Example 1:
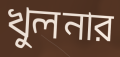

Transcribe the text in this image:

খুলনার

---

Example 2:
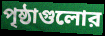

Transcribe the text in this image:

পৃষ্ঠাগুলোর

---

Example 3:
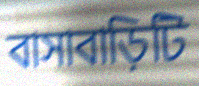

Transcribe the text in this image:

বাসাবাড়িটি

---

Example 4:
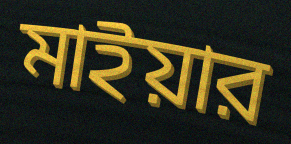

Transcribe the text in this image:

মাইয়ার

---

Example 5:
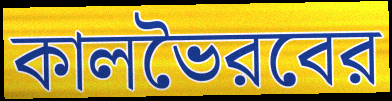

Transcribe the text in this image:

কালভৈরবের